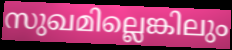
സുഖമില്ലെങ്കിലും